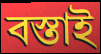
বস্তাই